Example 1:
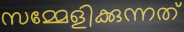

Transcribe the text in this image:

സമ്മേളിക്കുന്നത്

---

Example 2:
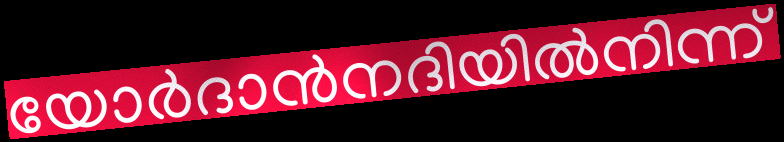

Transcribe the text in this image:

യോർദാൻനദിയിൽനിന്ന്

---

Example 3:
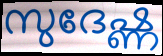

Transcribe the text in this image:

സുദേഷ്ണ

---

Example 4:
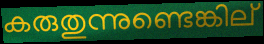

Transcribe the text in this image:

കരുതുന്നുണ്ടെങ്കില്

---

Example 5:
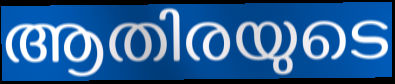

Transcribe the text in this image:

ആതിരയുടെ